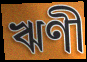
ঋণী